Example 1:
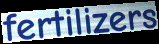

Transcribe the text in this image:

fertilizers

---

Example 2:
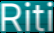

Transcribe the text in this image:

Riti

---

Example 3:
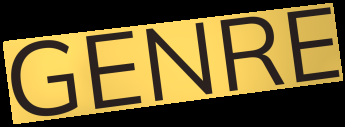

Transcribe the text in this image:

GENRE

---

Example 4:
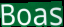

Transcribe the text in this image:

Boas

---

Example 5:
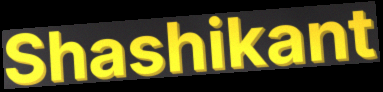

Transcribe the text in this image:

Shashikant